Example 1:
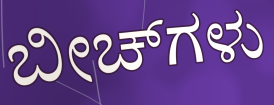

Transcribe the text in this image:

ಬೀಚ್‌ಗಳು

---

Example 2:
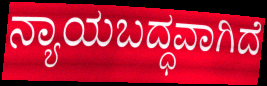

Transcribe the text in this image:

ನ್ಯಾಯಬದ್ಧವಾಗಿದೆ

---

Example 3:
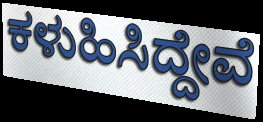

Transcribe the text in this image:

ಕಳುಹಿಸಿದ್ದೇವೆ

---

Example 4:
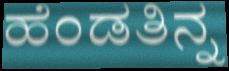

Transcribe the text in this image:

ಹೆಂಡತಿನ್ನ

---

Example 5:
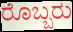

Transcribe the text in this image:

ರೊಬ್ಬರು